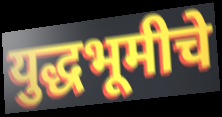
युद्धभूमीचे